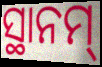
ସ୍ଥାନମ୍